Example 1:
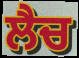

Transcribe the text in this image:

ਲੈਚ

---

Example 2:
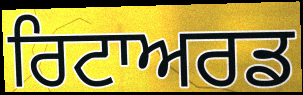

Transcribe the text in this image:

ਰਿਟਾਅਰਡ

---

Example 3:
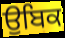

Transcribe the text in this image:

ਉਬਿਕ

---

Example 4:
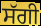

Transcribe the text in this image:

ਸੱਗੀ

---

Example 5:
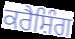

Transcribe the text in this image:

ਕਰੈਸ਼ਿੰਗ